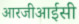
आरजीआईसी